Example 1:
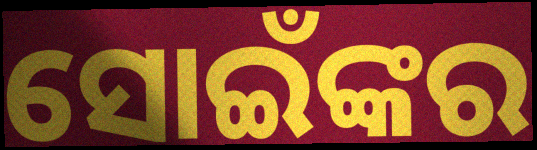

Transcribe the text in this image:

ସୋଇଁଙ୍କର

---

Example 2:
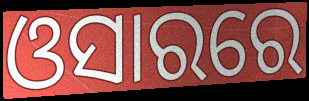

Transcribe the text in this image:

ଓସାରରେ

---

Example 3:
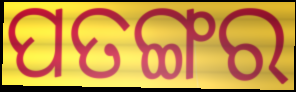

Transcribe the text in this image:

ପତଙ୍ଗର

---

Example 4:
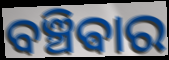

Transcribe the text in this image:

ବଞ୍ଚିଵାର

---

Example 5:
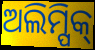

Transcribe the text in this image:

ଅଲିମ୍ପିକ୍